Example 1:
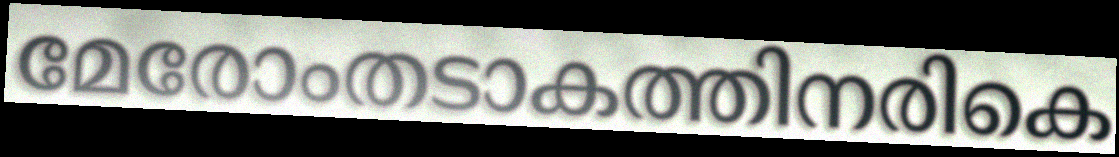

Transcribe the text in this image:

മേരോംതടാകത്തിനരികെ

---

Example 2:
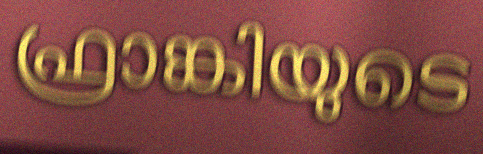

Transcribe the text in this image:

ഫ്രാങ്കിയുടെ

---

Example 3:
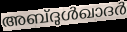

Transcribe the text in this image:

അബ്ദുൾഖാദർ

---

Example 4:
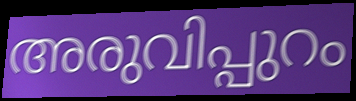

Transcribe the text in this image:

അരുവിപ്പുറം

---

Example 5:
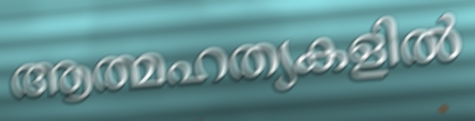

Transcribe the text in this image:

ആത്മഹത്യകളിൽ